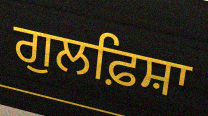
ਗੁਲਫ਼ਿਸ਼ਾ